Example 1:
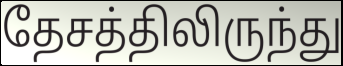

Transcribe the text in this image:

தேசத்திலிருந்து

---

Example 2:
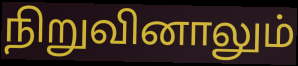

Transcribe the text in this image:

நிறுவினாலும்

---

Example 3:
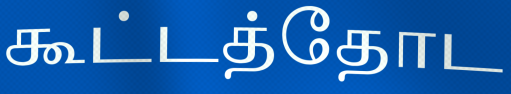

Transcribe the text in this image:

கூட்டத்தோட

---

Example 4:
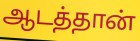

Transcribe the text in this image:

ஆடத்தான்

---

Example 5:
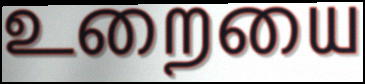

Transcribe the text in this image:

உறையை